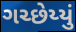
ગચ્છેય્યું